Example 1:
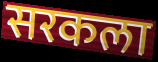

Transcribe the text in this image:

सरकला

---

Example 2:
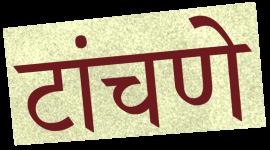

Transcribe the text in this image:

टांचणे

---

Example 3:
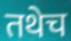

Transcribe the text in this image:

तथेच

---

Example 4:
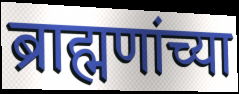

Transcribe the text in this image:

ब्राह्मणांच्या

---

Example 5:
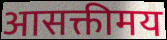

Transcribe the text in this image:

आसक्तीमय